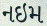
નઇમ